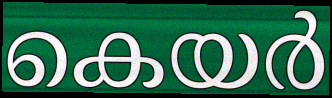
കെയർ